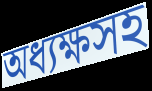
অধ্যক্ষসহ